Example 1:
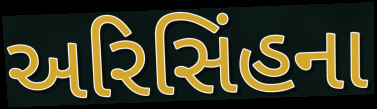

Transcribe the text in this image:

અરિસિંહના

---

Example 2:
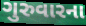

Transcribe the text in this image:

ગુરુવારના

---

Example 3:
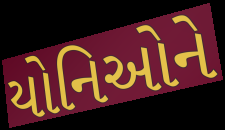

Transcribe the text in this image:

યોનિઓને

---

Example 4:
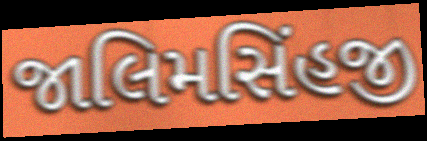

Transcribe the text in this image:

જાલિમસિંહજી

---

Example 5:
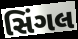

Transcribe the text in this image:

સિંગલ